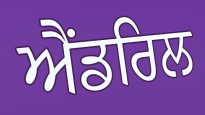
ਐਂਡਰਿਲ